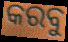
କରବୁ